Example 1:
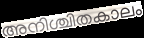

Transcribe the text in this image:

അനിശ്ചിതകാലം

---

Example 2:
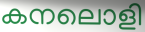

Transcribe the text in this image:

കനലൊളി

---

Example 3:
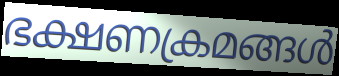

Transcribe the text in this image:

ഭക്ഷണക്രമങ്ങൾ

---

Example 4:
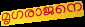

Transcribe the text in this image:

മൃഗരാജനെ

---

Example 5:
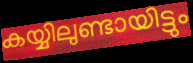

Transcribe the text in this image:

കയ്യിലുണ്ടായിട്ടും